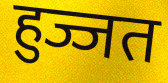
हुज्जत